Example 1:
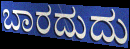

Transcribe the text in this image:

ಬಾರದುದು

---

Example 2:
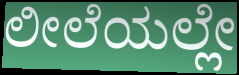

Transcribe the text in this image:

ಲೀಲೆಯಲ್ಲೇ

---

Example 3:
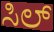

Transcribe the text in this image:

ಸಿಲ್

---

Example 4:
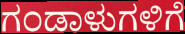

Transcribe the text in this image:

ಗಂಡಾಳುಗಳಿಗೆ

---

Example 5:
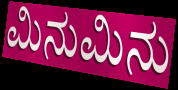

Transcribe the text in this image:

ಮಿನುಮಿನು